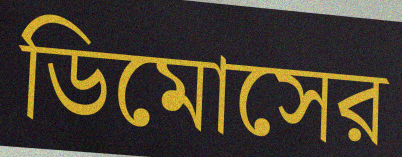
ডিমোসের